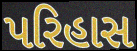
પરિહાસ